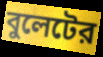
বুলেটের